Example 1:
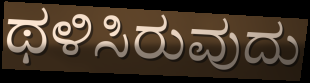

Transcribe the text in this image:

ಥಳಿಸಿರುವುದು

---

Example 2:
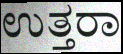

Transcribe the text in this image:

ಉತ್ತರಾ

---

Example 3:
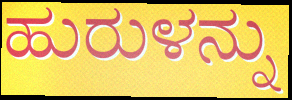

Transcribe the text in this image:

ಹುರುಳನ್ನು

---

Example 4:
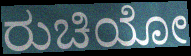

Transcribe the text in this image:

ರುಚಿಯೋ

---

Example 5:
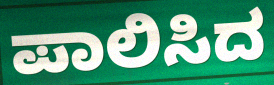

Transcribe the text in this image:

ಪಾಲಿಸಿದ